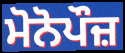
ਮੋਨੋਪੌਜ਼